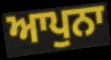
ਆਪੁਨਾ